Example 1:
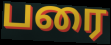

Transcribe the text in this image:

பரை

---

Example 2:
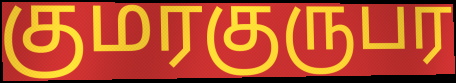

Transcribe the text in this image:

குமரகுருபர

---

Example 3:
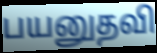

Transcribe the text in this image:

பயனுதவி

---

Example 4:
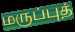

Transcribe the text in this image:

மருப்புத்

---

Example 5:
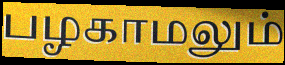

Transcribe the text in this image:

பழகாமலும்